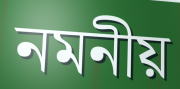
নমনীয়